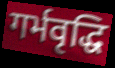
गर्भवृद्धि